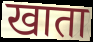
खाता